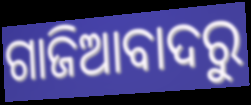
ଗାଜିଆବାଦରୁ